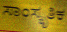
ಸಾಂಸ್ಕೃತಿಕ